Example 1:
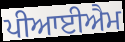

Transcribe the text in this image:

ਪੀਆਈਐਮ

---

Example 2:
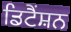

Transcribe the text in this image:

ਡਿਟੈਂਸ਼ਨ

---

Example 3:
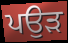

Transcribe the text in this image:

ਪਉੜ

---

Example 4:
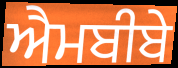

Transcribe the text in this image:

ਐਮਬੀਬੇ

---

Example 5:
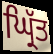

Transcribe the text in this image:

ਘ੍ਰਿੱਤ